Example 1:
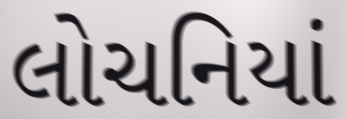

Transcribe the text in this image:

લોચનિયાં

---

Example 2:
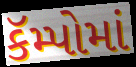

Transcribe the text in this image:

કૅમ્પોમાં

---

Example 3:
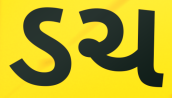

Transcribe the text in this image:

ડચ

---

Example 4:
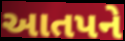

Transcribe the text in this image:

આતપને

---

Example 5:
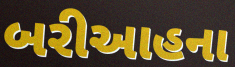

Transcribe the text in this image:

બરીઆહના